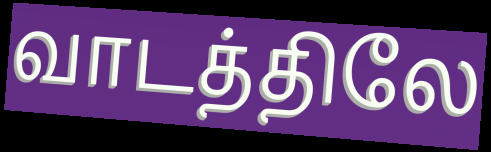
வாடத்திலே